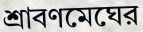
শ্রাবণমেঘের